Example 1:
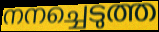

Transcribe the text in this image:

നനച്ചെടുത്ത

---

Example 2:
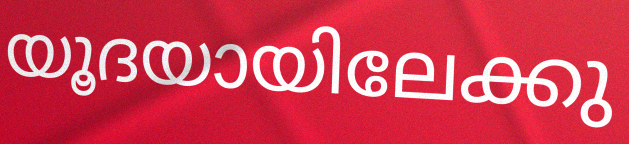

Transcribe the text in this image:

യൂദയായിലേക്കു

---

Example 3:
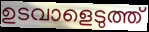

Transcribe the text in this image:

ഉടവാളെടുത്ത്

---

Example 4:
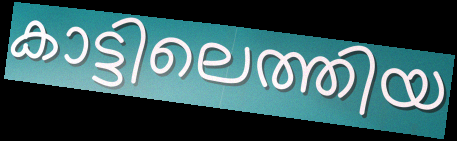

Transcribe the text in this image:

കാട്ടിലെത്തിയ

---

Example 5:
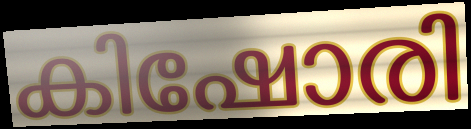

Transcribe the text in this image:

കിഷോരി